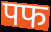
पफ